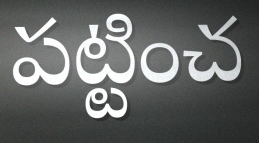
పట్టించ